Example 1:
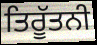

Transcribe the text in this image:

ਤਿਰੂੱਤਨੀ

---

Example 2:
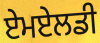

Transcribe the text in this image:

ਏਮਏਲਡੀ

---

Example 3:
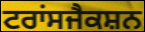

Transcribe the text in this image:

ਟਰਾਂਸਜੈਕਸ਼ਨ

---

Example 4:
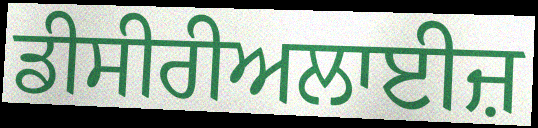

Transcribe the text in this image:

ਡੀਸੀਰੀਅਲਾਈਜ਼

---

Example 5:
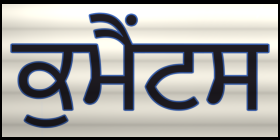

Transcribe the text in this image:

ਕੁਮੈਂਟਸ